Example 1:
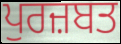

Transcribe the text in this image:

ਪੁਰਜ਼ਬਤ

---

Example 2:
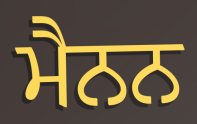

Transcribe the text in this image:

ਮੈਨਨ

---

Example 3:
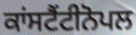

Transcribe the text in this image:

ਕਾਂਸਟੈਂਟੀਨੋਪਲ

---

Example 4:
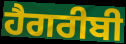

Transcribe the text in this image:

ਹੈਗਰੀਬੀ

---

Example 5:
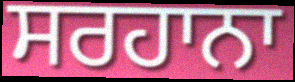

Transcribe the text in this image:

ਸਰਹਾਨਾ